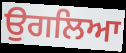
ਉਗਲਿਆ